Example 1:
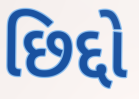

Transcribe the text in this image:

છિદ્દો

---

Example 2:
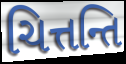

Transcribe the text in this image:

ચિત્તન્તિ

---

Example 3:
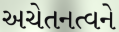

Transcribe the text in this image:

અચેતનત્વને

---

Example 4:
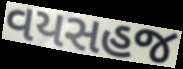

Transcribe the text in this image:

વયસહજ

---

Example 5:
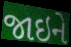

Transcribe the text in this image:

જાઇને